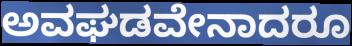
ಅವಘಡವೇನಾದರೂ